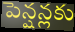
పెన్షన్లకు